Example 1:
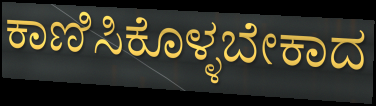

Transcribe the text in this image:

ಕಾಣಿಸಿಕೊಳ್ಳಬೇಕಾದ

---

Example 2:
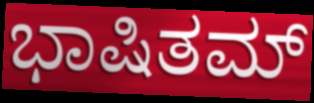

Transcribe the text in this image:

ಭಾಷಿತಮ್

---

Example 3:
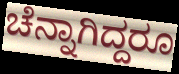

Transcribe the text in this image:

ಚೆನ್ನಾಗಿದ್ದರೂ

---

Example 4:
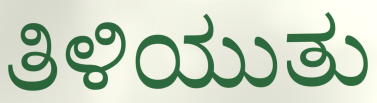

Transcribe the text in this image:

ತಿಳಿಯುತು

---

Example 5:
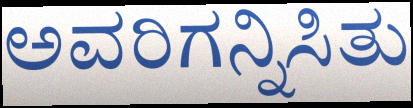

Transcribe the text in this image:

ಅವರಿಗನ್ನಿಸಿತು